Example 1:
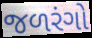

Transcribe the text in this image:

જળરંગો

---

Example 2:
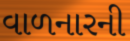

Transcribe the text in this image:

વાળનારની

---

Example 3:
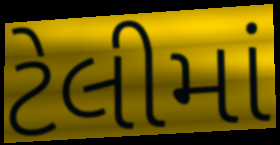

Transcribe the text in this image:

ટેલીમાં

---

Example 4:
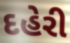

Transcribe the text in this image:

દહેરી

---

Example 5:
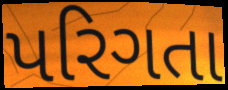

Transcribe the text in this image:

પરિગતા